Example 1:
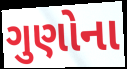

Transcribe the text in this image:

ગુણોના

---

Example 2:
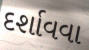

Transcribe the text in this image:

દર્શાવવા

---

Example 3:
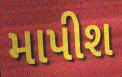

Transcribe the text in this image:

માપીશ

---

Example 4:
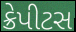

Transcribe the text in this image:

ક્રેપીટસ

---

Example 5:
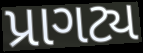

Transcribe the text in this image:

પ્રાગટ્ય